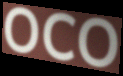
OCO